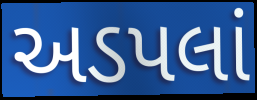
અડપલાં